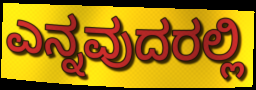
ಎನ್ನವುದರಲ್ಲಿ